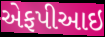
એફપીઆઇ